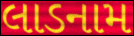
લાડનામ